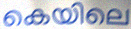
കെയിലെ